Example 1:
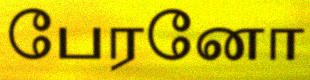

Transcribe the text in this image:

பேரனோ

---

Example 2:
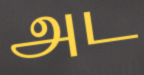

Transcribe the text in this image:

அட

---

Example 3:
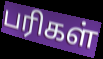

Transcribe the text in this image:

பரிகள்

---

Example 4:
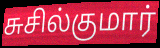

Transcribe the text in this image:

சுசில்குமார்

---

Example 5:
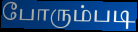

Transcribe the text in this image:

போரும்படி